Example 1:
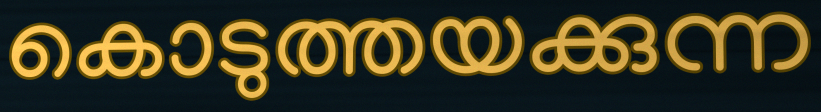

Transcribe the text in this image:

കൊടുത്തയക്കുന്ന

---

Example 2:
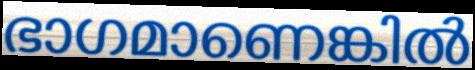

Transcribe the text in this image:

ഭാഗമാണെങ്കിൽ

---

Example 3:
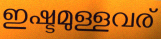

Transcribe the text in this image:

ഇഷ്ടമുള്ളവര്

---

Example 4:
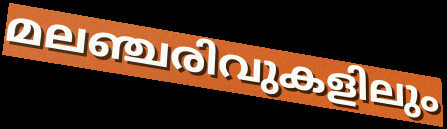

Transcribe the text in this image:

മലഞ്ചരിവുകളിലും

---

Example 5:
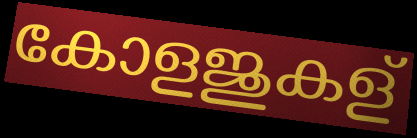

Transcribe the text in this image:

കോളജുകള്